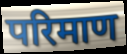
परिमाण